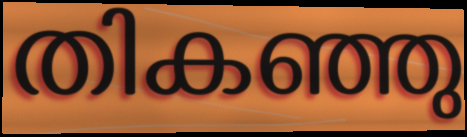
തികഞ്ഞു